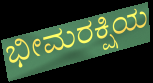
ಭೀಮರಕ್ಷಿಯ